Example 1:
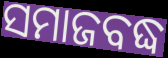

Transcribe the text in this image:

ସମାଜବଦ୍ଧ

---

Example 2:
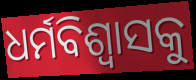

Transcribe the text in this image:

ଧର୍ମବିଶ୍ୱାସକୁ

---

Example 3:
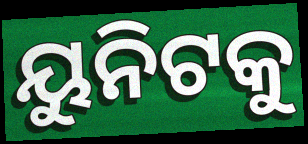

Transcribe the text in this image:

ୟୁନିଟକୁ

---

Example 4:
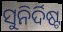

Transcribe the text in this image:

ସୁନିର୍ଦିଷ୍ଟ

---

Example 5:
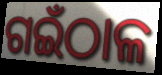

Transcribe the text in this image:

ଗଇଁଠାଳ